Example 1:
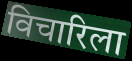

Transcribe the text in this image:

विचारिला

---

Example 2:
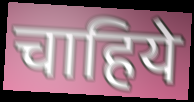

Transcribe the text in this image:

चाहिये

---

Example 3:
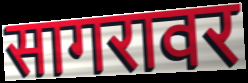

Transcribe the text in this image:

सागरावर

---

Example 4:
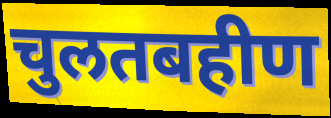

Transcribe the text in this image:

चुलतबहीण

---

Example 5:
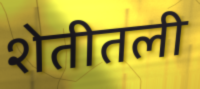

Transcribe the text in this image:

शेतीतली